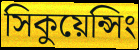
সিকুয়েন্সিং